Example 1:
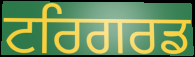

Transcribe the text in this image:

ਟਰਿਗਰਡ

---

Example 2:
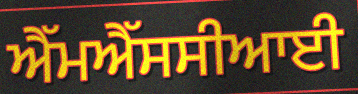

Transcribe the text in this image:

ਐੱਮਐੱਸਸੀਆਈ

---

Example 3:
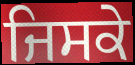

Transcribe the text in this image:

ਜਿਸਕੇ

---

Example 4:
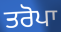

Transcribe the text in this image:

ਤਰੋਪਾ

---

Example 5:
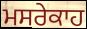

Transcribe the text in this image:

ਮਸਰੇਕਾਹ